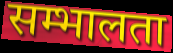
सम्भालता